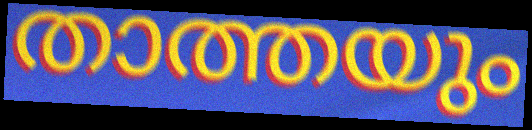
താത്തയും